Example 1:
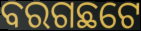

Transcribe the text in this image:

ବରଗଛଟେ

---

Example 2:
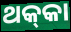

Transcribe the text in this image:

ଥକ୍‌କା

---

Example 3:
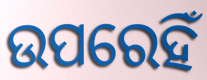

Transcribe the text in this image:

ଉପରେହିଁ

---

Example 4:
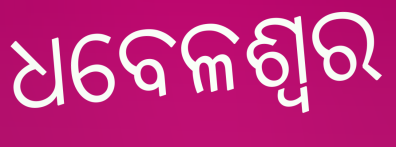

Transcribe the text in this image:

ଧବେଳଶ୍ୱର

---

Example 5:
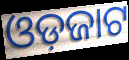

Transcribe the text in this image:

ଓଡ଼ଜାଟ